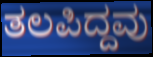
ತಲಪಿದ್ದವು